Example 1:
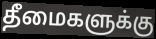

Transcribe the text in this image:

தீமைகளுக்கு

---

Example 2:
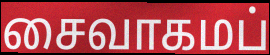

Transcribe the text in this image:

சைவாகமப்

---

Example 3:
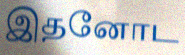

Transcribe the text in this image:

இதனோட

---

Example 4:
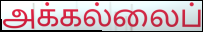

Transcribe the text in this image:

அக்கல்லைப்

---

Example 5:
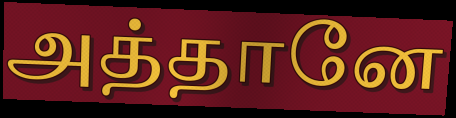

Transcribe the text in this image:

அத்தானே